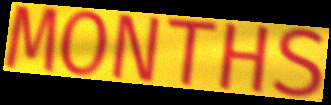
MONTHS